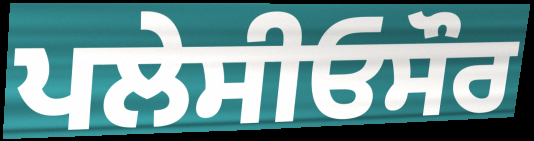
ਪਲੇਸੀਓਸੌਰ